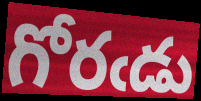
గోరఁడు